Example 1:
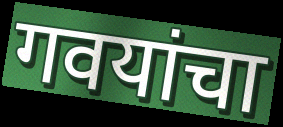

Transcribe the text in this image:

गवयांचा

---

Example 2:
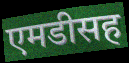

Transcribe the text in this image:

एमडीसह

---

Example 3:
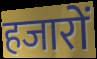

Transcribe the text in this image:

हजारों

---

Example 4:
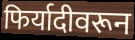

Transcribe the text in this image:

फिर्यादीवरून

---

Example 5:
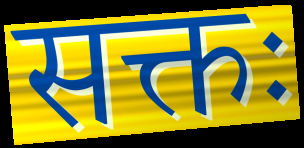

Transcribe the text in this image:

सक्तः